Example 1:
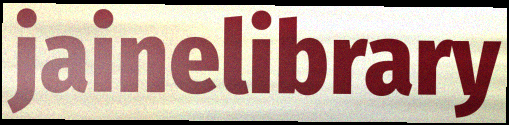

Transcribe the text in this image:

jainelibrary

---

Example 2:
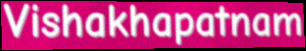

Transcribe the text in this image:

Vishakhapatnam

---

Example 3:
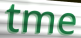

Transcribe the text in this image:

tme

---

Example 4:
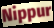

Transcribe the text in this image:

Nippur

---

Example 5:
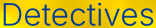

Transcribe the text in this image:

Detectives